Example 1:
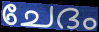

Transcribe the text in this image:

ചേദം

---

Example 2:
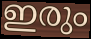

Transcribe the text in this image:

ഇരും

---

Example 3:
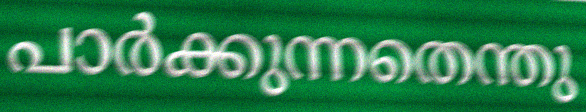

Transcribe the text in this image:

പാർക്കുന്നതെന്തു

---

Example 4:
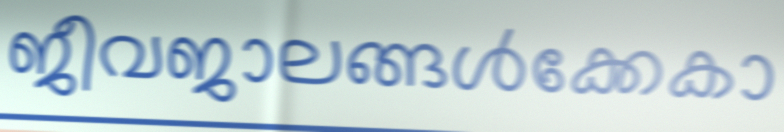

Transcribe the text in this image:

ജീവജാലങ്ങൾക്കേകാ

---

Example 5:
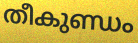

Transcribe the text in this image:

തീകുണ്ഡം